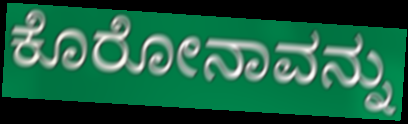
ಕೊರೋನಾವನ್ನು